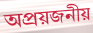
অপ্রয়জনীয়